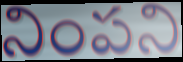
నింపని